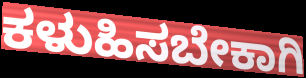
ಕಳುಹಿಸಬೇಕಾಗಿ